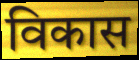
विकास